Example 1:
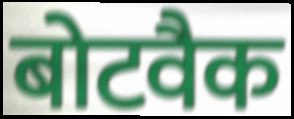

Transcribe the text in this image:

बोटवैक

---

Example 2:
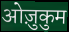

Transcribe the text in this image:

ओज़ुकुम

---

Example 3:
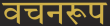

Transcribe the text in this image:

वचनरूप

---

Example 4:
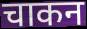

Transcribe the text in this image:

चाकन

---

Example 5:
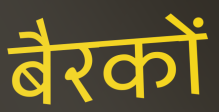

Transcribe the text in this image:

बैरकों